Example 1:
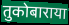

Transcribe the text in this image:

तुकोबाराया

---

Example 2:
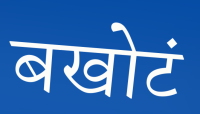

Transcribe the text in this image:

बखोटं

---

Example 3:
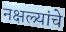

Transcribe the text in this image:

नक्षल्यांचे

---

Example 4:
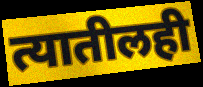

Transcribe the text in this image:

त्यातीलही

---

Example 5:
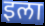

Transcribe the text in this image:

इला